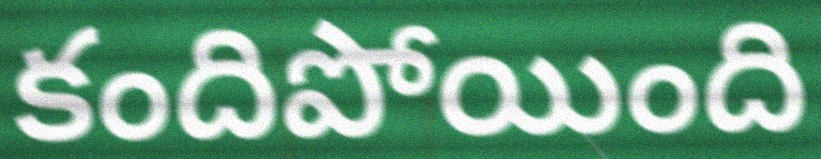
కందిపోయింది